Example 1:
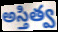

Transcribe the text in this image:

అస్తిత్వ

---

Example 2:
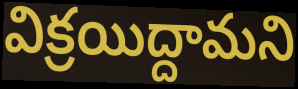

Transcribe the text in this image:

విక్రయిద్దామని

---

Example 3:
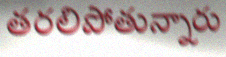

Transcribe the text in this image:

తరలిపోతున్నారు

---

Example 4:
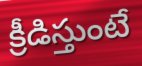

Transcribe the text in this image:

క్రీడిస్తుంటే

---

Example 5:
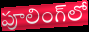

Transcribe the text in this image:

పూలింగ్‌లో